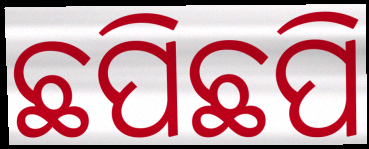
ଛପିଛପି